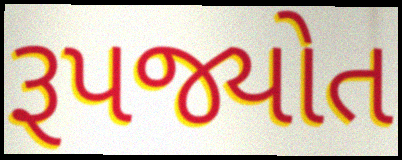
રૂપજ્યોત